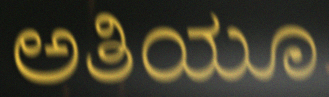
ಅತಿಯೂ